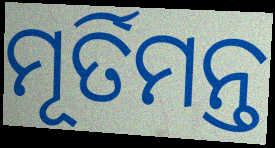
ମୂର୍ତିମନ୍ତ